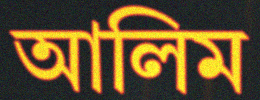
আলিম